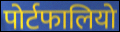
पोर्टफालियो